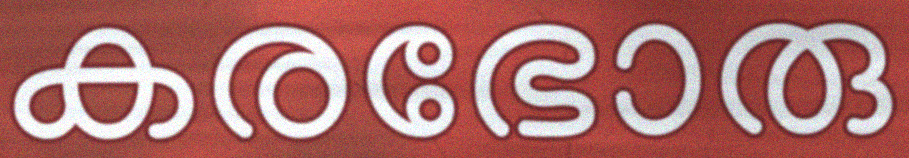
കരഭോരു